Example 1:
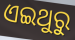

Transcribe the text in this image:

ଏଇଥୁରୁ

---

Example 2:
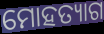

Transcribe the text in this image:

ମୋହତ୍ୟାଗ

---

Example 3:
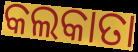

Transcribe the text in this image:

କଲକାତା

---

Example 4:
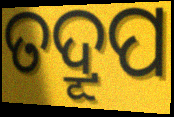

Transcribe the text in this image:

ତଦ୍ରୂପ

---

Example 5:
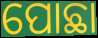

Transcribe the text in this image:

ପୋଛା